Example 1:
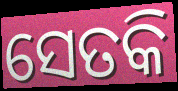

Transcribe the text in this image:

ସେତକି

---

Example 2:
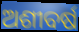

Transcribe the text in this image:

ଅଶୀବର୍ଷ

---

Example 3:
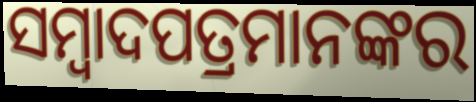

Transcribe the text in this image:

ସମ୍ୱାଦପତ୍ରମାନଙ୍କର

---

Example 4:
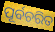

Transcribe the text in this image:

ପୂର୍ବଚରିତ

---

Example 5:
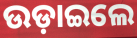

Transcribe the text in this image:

ଉଡ଼ାଇଲେ